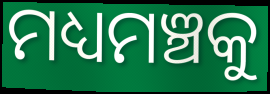
ମଧ୍ୟମଞ୍ଚକୁ